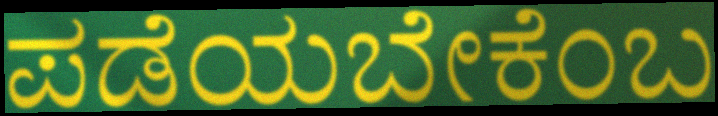
ಪಡೆಯಬೇಕೆಂಬ